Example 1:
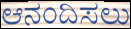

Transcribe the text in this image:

ಆನಂದಿಸಲು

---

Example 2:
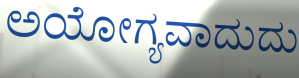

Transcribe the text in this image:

ಅಯೋಗ್ಯವಾದುದು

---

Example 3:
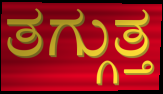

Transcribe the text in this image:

ತಗ್ಗುತ್ತ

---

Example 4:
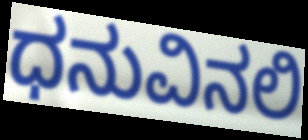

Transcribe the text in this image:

ಧನುವಿನಲಿ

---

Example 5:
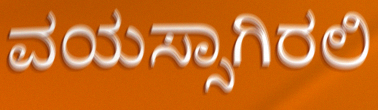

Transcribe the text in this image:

ವಯಸ್ಸಾಗಿರಲಿ